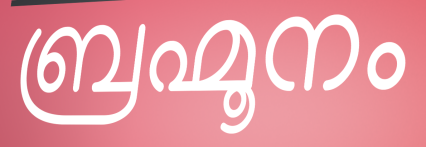
ബ്രഹ്മൂനം